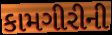
કામગીરીની